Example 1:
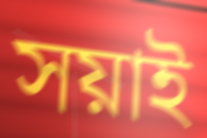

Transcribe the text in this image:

সয়াই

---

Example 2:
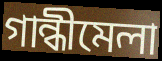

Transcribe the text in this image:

গান্ধীমেলা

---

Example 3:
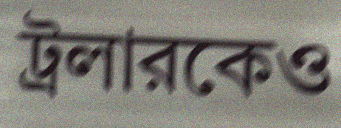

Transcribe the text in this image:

ট্রলারকেও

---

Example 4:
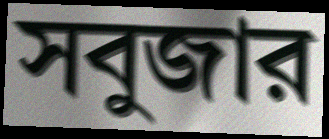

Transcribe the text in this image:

সবুজার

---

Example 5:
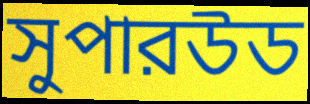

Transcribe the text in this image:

সুপারউড